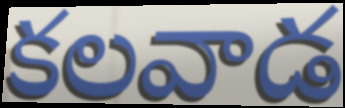
కలవాడ